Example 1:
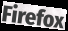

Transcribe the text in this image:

Firefox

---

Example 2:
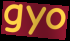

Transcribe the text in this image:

gyo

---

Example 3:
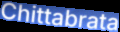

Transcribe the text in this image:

Chittabrata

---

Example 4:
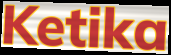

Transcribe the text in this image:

Ketika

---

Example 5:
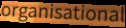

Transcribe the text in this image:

organisational